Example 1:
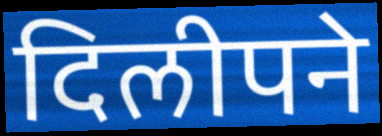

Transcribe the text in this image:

दिलीपने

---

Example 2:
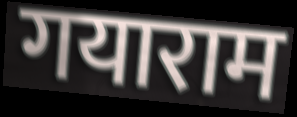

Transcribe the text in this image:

गयाराम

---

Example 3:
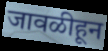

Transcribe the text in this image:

जावळीहून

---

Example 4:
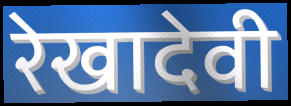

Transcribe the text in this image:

रेखादेवी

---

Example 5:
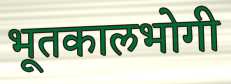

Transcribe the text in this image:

भूतकालभोगी